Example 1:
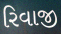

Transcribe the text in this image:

રિવાજી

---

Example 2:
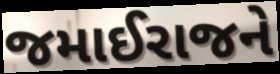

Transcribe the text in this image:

જમાઈરાજને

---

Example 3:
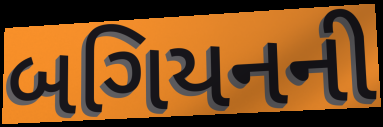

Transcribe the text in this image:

બગિયનની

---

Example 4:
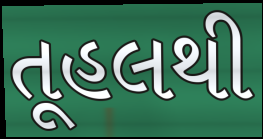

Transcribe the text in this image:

તૂહલથી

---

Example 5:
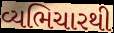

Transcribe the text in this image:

વ્યભિચારથી